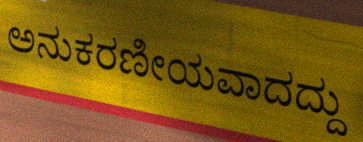
ಅನುಕರಣೀಯವಾದದ್ದು